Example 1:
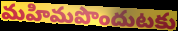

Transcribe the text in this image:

మహిమపొందుటకు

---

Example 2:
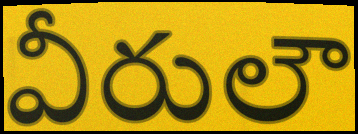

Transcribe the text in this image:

వీరులౌ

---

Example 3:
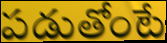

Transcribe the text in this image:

పడుతోంటే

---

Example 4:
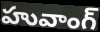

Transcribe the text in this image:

హువాంగ్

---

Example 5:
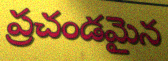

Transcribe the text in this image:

ప్రచండమైన